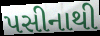
પસીનાથી